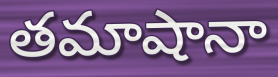
తమాషానా